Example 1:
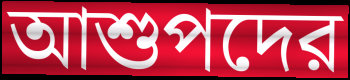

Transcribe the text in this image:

আশুপদের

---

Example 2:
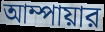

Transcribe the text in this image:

আম্পায়ার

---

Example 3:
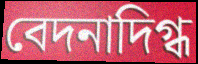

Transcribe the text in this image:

বেদনাদিগ্ধ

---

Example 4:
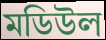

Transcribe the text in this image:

মডিউল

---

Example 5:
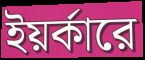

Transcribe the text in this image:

ইয়র্কারে